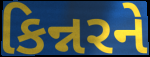
કિન્નરને